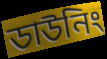
ডাউনিং